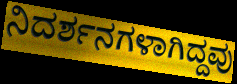
ನಿದರ್ಶನಗಳಾಗಿದ್ದವು